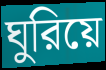
ঘুরিয়ে